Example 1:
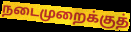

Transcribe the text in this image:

நடைமுறைக்குத்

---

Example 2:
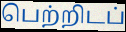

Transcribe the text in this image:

பெற்றிடப்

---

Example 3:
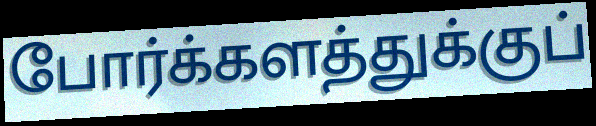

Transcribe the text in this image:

போர்க்களத்துக்குப்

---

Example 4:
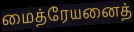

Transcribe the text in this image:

மைத்ரேயனைத்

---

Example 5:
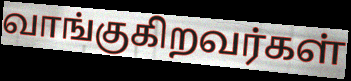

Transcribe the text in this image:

வாங்குகிறவர்கள்